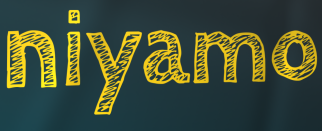
niyamo